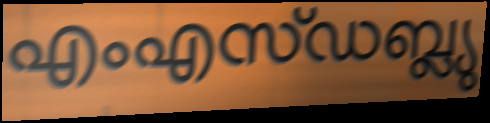
എംഎസ്ഡബ്ല്യു